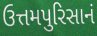
ઉત્તમપુરિસાનં